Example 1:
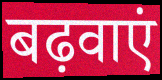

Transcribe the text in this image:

बढ़वाएं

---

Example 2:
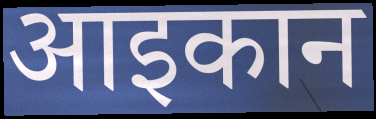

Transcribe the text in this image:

आइकान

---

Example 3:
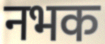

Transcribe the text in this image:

नभक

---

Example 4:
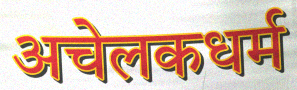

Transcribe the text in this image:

अचेलकधर्म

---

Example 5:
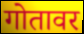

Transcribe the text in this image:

गोतावर